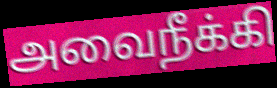
அவைநீக்கி